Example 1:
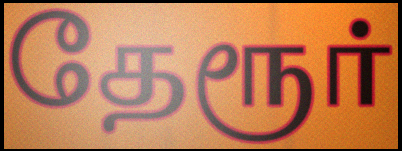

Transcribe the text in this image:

தேரூர்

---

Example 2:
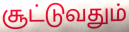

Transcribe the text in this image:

சூட்டுவதும்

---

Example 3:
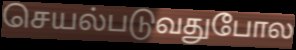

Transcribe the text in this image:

செயல்படுவதுபோல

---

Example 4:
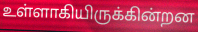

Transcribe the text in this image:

உள்ளாகியிருக்கின்றன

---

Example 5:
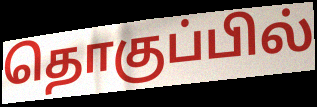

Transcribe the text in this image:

தொகுப்பில்